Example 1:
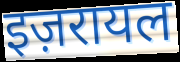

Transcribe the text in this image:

इज़रायल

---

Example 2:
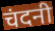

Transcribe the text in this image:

चंदनी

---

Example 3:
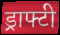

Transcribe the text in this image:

ड्राफ्टी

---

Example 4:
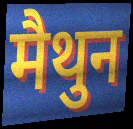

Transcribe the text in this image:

मैथुन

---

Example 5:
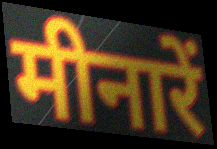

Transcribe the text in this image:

मीनारें